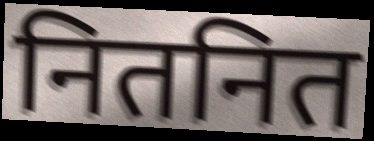
नितनित